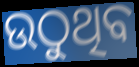
ଉଠୁଥିବ